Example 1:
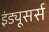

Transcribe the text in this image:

इंड्यूसर्स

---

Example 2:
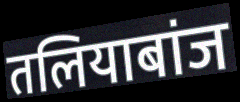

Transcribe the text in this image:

तलियाबांज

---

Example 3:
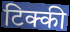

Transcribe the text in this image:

टिक्‍की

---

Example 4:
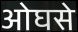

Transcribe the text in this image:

ओघसे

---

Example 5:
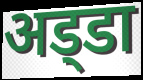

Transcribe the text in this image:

अड्‍डा